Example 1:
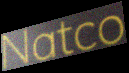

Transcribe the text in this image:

Natco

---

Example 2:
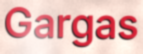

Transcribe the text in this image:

Gargas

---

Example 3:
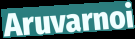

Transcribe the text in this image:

Aruvarnoi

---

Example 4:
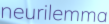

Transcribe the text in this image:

neurilemma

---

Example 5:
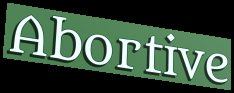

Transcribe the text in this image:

Abortive